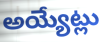
అయ్యేట్లు